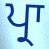
ਪ੍ਰਾ